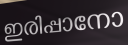
ഇരിപ്പാനോ